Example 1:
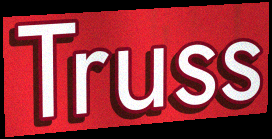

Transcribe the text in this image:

Truss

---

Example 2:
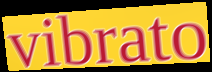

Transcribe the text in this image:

vibrato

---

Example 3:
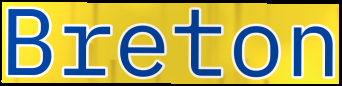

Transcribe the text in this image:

Breton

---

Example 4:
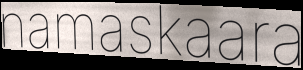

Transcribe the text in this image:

namaskaara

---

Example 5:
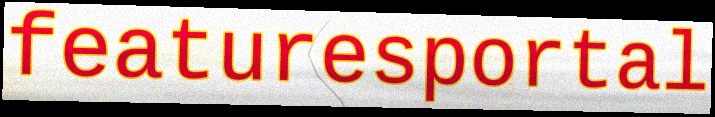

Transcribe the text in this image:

featuresportal